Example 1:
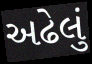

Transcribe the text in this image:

અઢેલું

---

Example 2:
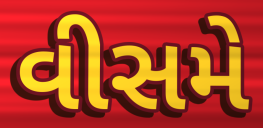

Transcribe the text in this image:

વીસમે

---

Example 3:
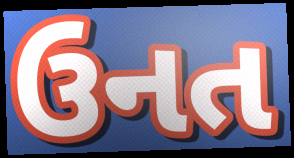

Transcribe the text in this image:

ઉનત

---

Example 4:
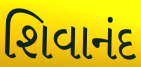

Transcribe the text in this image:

શિવાનંદ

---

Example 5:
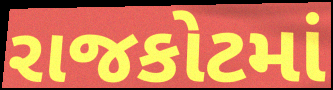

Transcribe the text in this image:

રાજકોટમાં